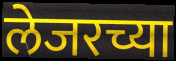
लेजरच्या